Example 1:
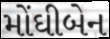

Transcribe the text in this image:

મોંઘીબેન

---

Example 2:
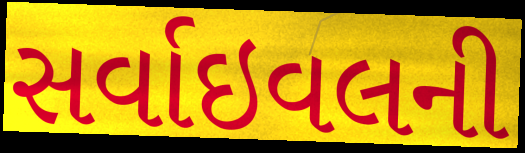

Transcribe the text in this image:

સર્વાઇવલની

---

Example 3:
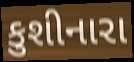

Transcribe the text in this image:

કુશીનારા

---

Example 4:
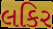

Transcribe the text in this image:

લકિર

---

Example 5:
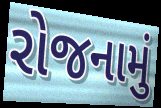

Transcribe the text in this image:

રોજનામું